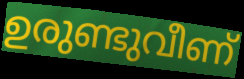
ഉരുണ്ടുവീണ്